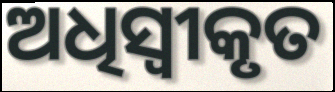
ଅଧିସ୍ୱୀକୃତ